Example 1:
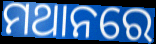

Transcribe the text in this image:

ମଥାନରେ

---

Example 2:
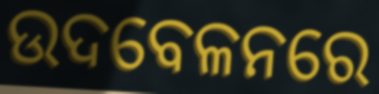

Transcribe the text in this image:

ଉଦବେଳନରେ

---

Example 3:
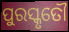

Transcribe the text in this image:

ପୁରସ୍କୃତୌ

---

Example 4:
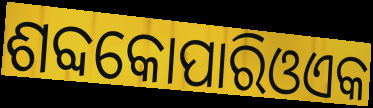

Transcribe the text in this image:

ଶବ୍ଦକୋପାରିଓଏକ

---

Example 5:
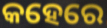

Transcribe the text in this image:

କହେରେ